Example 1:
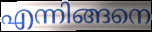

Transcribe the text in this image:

എന്നിങ്ങനെ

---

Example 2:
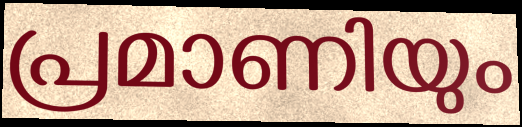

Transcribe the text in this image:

പ്രമാണിയും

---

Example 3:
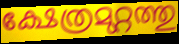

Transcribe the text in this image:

ക്ഷേത്രമുറ്റത്തു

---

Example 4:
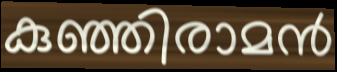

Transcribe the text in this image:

കുഞ്ഞിരാമൻ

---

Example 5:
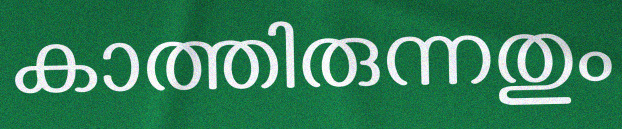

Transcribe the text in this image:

കാത്തിരുന്നതും